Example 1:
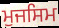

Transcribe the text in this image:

ਮੁਜਸਿਮ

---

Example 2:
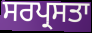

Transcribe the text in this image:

ਸਰਪ੍ਰਸਤਾ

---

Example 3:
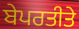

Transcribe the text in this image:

ਬੇਪਰਤੀਤੇ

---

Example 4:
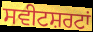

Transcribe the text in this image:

ਸਵੀਟਸ਼ਰਟਾਂ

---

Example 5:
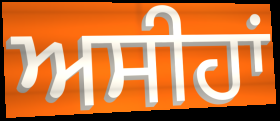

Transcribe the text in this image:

ਅਸੀਹਾਂ